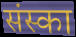
संस्का